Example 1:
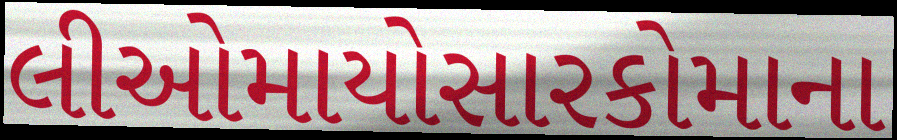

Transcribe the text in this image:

લીઓમાયોસારકોમાના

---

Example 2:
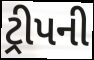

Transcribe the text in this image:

ટ્રીપની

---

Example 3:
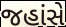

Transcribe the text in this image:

જહાંસે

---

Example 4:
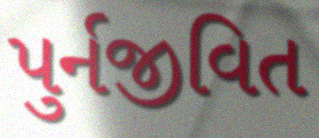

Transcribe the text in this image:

પુર્નજીવિત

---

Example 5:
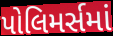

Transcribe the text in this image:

પોલિમર્સમાં